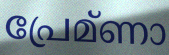
പ്രേമ്ണാ